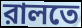
রালতে